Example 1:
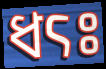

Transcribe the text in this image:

ধৎঃ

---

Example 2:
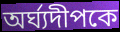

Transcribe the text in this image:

অর্ঘ্যদীপকে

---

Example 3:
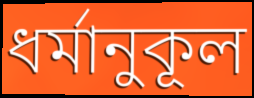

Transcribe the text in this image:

ধর্মানুকূল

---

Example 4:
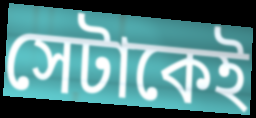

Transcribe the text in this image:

সেটাকেই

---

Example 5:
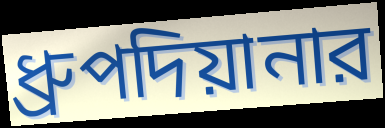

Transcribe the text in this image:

ধ্রুপদিয়ানার